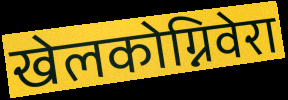
खेलकोग्निवेरा